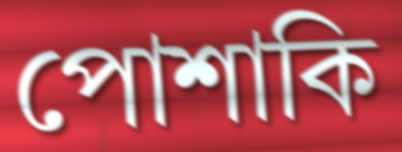
পোশাকি